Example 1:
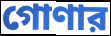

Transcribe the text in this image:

গোণার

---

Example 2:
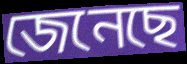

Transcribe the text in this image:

জেনেছে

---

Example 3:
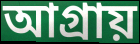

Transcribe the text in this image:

আগ্রায়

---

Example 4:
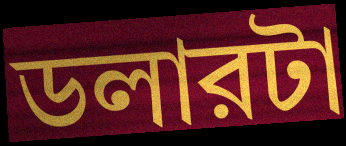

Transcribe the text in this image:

ডলারটা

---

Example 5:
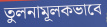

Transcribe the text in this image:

তুলনামূলকভাবে